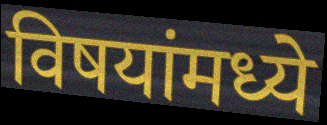
विषयांमध्ये